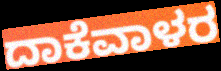
ದಾಕೆವಾಳರ